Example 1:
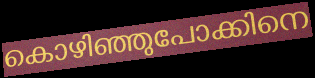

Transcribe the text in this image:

കൊഴിഞ്ഞുപോക്കിനെ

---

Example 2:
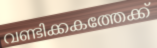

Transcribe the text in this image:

വണ്ടിക്കകത്തേക്ക്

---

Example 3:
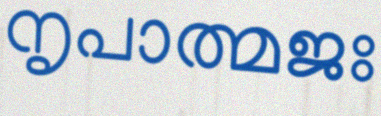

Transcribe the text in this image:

നൃപാത്മജഃ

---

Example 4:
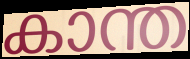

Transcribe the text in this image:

കാന്ത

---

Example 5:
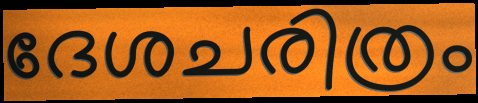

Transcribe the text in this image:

ദേശചരിത്രം